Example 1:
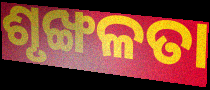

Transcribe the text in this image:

ଶୃଙ୍ଖଳତା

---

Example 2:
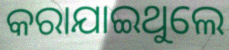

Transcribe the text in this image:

କରାଯାଇଥୁଲେ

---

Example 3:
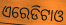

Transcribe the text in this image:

ଏରେଡିଟାଓ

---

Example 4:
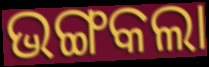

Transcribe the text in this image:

ଭଙ୍ଗକଲା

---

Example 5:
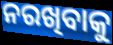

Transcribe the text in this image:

ନରଖିବାକୁ